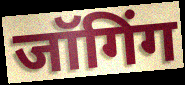
जॉगिंग